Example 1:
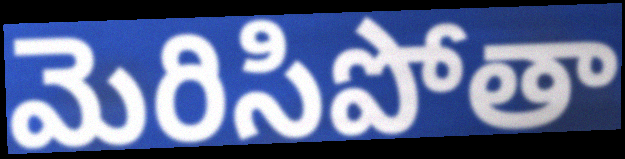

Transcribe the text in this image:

మెరిసిపోతా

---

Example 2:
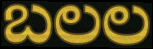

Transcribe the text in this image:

బలల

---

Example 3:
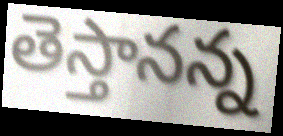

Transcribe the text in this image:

తెస్తానన్న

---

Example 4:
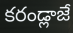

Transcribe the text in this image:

కరండ్లాజే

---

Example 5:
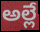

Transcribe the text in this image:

అల్లే